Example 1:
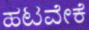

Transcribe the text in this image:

ಹಟವೇಕೆ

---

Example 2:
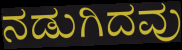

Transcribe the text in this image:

ನಡುಗಿದವು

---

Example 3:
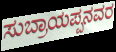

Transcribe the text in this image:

ಸುಬ್ರಾಯಪ್ಪನವರ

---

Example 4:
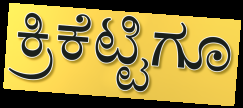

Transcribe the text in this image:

ಕ್ರಿಕೆಟ್ಟಿಗೂ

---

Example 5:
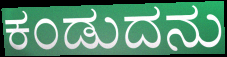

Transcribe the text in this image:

ಕಂಡುದನು